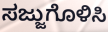
ಸಜ್ಜುಗೊಳಿಸಿ